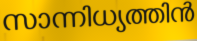
സാന്നിധ്യത്തിൻ